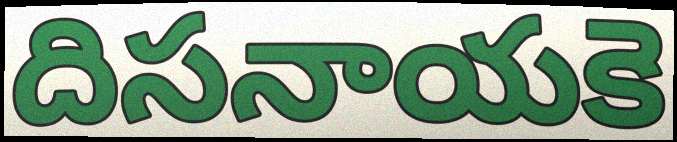
దిసనాయకె